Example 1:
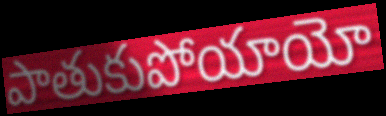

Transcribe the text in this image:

పాతుకుపోయాయో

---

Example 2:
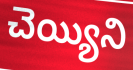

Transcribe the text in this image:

చెయ్యిని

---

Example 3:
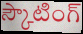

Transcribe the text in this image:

స్కౌటింగ్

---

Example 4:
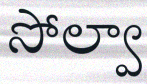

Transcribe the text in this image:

సోల్వా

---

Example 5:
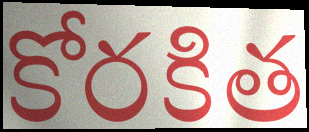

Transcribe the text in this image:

కోరకిత